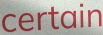
certain